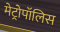
मेट्रोपॉलिस